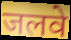
जलवे